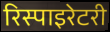
रिस्पाइरेटरी